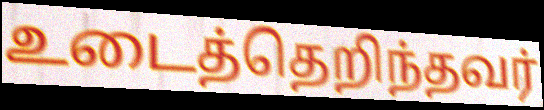
உடைத்தெறிந்தவர்